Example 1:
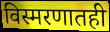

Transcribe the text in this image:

विस्मरणातही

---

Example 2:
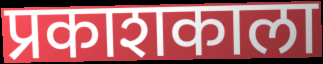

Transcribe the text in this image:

प्रकाशकाला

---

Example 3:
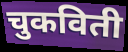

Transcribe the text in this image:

चुकविती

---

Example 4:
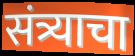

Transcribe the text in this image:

संत्र्याचा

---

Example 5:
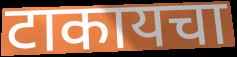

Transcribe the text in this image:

टाकायचा